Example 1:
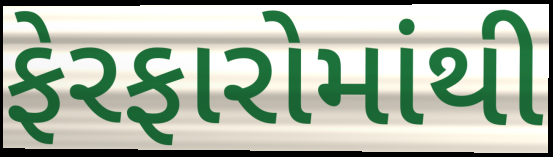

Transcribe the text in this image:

ફેરફારોમાંથી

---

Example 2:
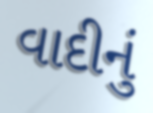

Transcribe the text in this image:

વાદીનું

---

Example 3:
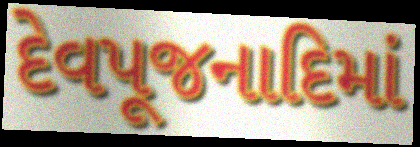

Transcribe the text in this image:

દેવપૂજનાદિમાં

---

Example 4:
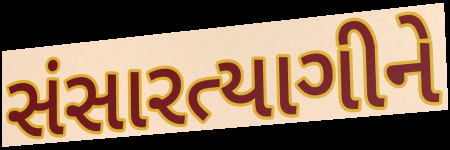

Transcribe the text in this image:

સંસારત્યાગીને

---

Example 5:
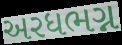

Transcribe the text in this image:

અરધભગ્ન